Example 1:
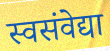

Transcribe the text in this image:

स्वसंवेद्या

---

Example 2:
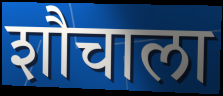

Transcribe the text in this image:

शौचाला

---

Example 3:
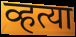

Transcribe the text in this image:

व्हत्या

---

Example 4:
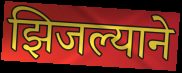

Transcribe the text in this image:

झिजल्याने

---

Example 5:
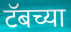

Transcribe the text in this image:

टॅबच्या